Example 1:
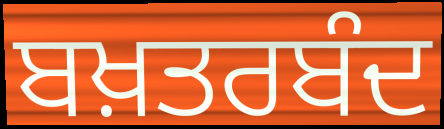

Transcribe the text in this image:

ਬਖ਼ਤਰਬੰਦ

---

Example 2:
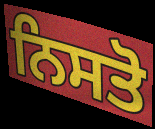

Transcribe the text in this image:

ਨਿਸਤੋ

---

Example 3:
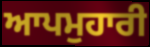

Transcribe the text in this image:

ਆਪਮੁਹਾਰੀ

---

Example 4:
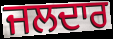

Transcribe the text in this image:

ਜਲਦਾਰ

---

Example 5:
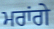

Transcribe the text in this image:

ਮਰਾਂਗੇ